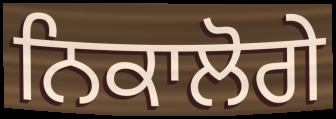
ਨਿਕਾਲੋਗੇ